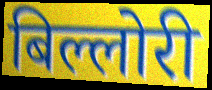
बिल्लोरी